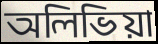
অলিভিয়া